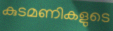
കുടമണികളുടെ